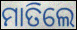
ମାତିଲେ